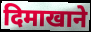
दिमाखाने